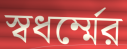
স্বধর্ম্মের